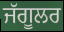
ਜੱਗੂਲਰ